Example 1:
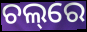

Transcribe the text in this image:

ଚଲ୍‌ରେ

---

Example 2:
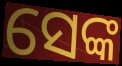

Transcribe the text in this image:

ସେଙ୍କ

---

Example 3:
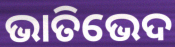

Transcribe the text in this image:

ଭାତିଭେଦ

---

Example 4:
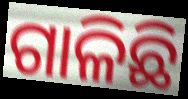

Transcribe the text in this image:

ଗାଳିଛି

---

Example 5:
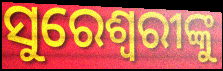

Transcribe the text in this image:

ସୁରେଶ୍ୱରୀଙ୍କୁ